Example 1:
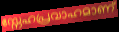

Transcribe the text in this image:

സ്നേഹപ്രവാഹമാണ്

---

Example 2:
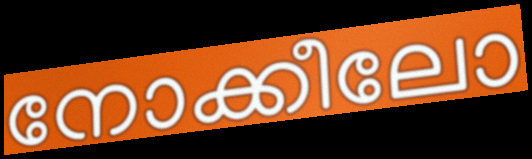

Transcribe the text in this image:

നോക്കീലോ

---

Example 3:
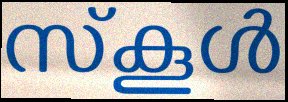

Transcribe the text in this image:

സ്‌കൂൾ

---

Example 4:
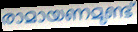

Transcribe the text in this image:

രാമായണമുണ്ട്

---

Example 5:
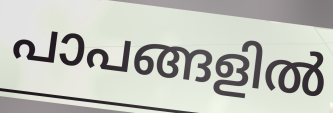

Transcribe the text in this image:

പാപങ്ങളിൽ